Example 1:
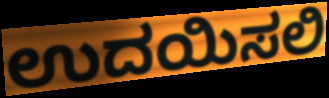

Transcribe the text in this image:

ಉದಯಿಸಲಿ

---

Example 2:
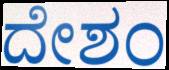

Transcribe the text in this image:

ದೇಶಂ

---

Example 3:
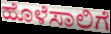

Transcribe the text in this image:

ಹೊಳೆಸಾಲಿಗೆ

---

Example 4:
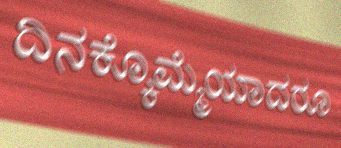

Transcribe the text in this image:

ದಿನಕ್ಕೊಮ್ಮೆಯಾದರೂ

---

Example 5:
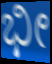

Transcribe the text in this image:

ಭೀ